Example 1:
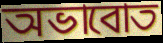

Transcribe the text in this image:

অভাবোত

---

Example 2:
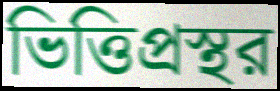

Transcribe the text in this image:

ভিত্তিপ্রস্থর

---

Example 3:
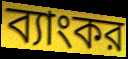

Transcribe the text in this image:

ব্যাংকর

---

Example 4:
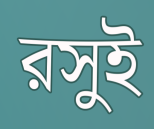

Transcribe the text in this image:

রসুই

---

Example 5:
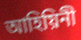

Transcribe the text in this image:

আহিয়িনী